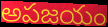
అపజయం